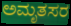
ಅಮೃತಸರ